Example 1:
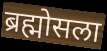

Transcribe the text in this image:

ब्रह्मोसला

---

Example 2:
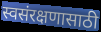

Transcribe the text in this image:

स्वसंरक्षणासाठी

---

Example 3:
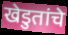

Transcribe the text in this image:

खेडुतांचे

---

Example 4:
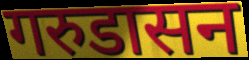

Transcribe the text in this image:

गरुडासन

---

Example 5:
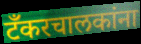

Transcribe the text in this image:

टँकरचालकांना